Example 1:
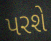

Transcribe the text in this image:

પરશે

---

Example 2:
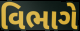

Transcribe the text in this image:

વિભાગે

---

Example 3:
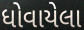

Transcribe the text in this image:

ધોવાયેલા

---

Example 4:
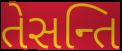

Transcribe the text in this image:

તેસન્તિ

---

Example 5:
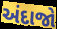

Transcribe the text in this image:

અંદાજો